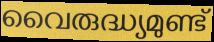
വൈരുദ്ധ്യമുണ്ട്